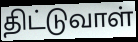
திட்டுவாள்